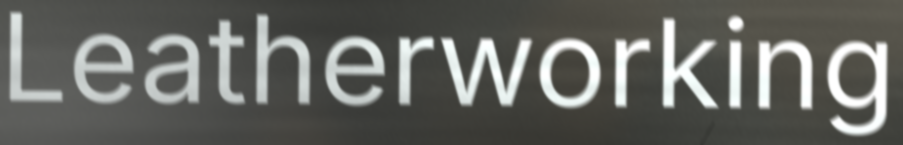
Leatherworking